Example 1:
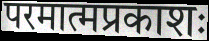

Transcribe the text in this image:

परमात्मप्रकाशः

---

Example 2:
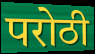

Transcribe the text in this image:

परोठी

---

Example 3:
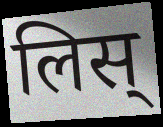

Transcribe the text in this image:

लिस्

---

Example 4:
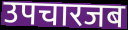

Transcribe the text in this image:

उपचारजब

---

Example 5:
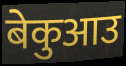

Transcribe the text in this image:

बेकुआउ